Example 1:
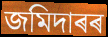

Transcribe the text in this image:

জমিদাৰৰ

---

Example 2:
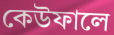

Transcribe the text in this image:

কেউফালে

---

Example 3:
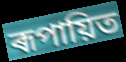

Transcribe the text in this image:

ৰূপায়িত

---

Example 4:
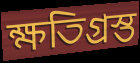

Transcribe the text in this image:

ক্ষতিগ্ৰস্ত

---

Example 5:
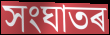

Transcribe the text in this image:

সংঘাতৰ